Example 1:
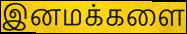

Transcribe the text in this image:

இனமக்களை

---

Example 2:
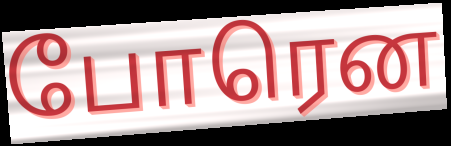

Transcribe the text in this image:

போரென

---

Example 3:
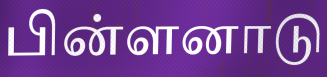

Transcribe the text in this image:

பின்ளனாடு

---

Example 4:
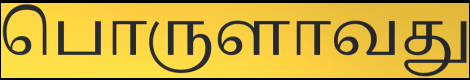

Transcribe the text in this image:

பொருளாவது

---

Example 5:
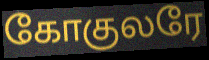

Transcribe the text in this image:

கோகுலரே